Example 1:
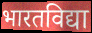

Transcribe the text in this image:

भारतविद्या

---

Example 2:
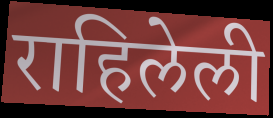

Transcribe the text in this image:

राहिलेली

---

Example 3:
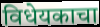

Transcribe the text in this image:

विधेयकाचा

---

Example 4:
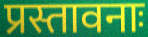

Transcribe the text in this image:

प्रस्तावनाः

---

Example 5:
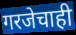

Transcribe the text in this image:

गरजेचाही